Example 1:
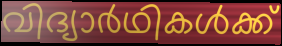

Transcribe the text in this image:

വിദ്യാർഥികൾക്ക്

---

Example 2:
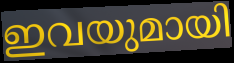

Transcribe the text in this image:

ഇവയുമായി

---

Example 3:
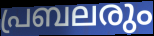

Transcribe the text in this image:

പ്രബലരും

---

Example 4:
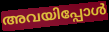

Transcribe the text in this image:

അവയിപ്പോൾ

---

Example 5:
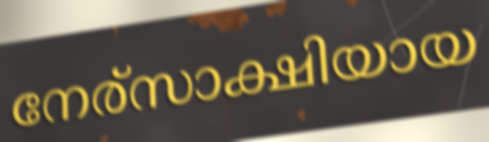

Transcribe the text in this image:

നേര്സാക്ഷിയായ